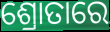
ଶ୍ରୋତାରେ